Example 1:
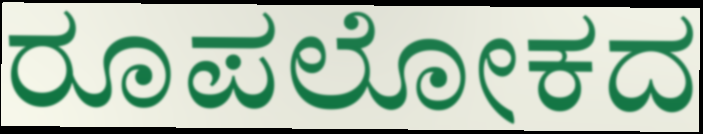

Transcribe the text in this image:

ರೂಪಲೋಕದ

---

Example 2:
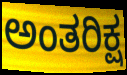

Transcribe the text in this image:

ಅಂತರಿಕ್ಷ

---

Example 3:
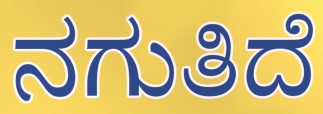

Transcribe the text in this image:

ನಗುತಿದೆ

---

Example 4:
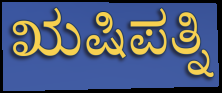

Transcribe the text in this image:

ಋಷಿಪತ್ನಿ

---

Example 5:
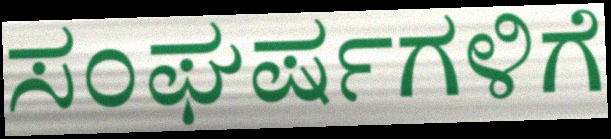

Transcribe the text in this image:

ಸಂಘರ್ಷಗಳಿಗೆ